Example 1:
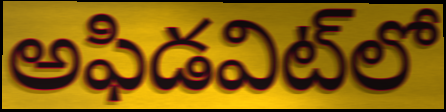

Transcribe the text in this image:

అఫిడవిట్‌లో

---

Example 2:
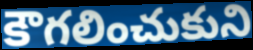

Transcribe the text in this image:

కౌగలించుకుని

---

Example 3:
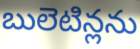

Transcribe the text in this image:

బులెటిన్లను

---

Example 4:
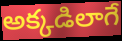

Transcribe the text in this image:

అక్కడిలాగే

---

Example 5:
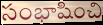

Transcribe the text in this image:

సంభాషించి